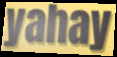
yahay